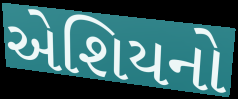
એશિયનો